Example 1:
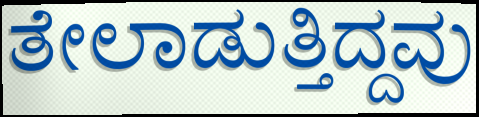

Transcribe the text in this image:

ತೇಲಾಡುತ್ತಿದ್ದವು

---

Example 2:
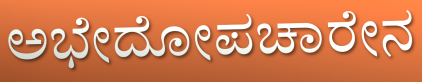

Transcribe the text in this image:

ಅಭೇದೋಪಚಾರೇನ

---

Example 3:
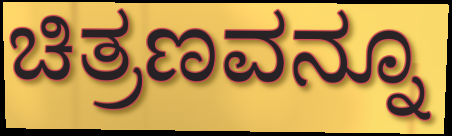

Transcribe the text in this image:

ಚಿತ್ರಣವನ್ನೂ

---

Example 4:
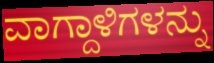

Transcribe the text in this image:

ವಾಗ್ದಾಳಿಗಳನ್ನು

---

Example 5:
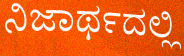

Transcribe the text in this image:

ನಿಜಾರ್ಥದಲ್ಲಿ